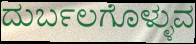
ದುರ್ಬಲಗೊಳ್ಳುವ